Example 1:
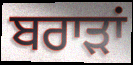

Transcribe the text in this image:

ਬਰਾੜਾਂ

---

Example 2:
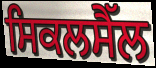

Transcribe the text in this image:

ਸਿਕਲਸੈੱਲ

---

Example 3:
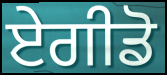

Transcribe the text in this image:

ਏਗੀਡੋ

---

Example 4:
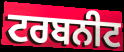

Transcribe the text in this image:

ਟਰਬਨੀਟ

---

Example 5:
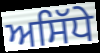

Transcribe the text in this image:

ਅਸਿੱਧੇ